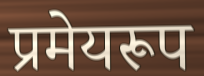
प्रमेयरूप